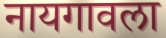
नायगावला